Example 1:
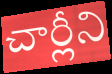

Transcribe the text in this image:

చార్లీని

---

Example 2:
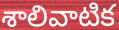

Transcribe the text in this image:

శాలివాటిక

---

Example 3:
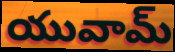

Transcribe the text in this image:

యువామ్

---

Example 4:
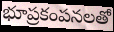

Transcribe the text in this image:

భూప్రకంపనలతో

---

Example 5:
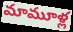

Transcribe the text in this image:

మామూళ్ల